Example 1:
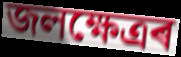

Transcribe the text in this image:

জলক্ষেত্ৰৰ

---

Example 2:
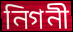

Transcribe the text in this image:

নিগনী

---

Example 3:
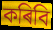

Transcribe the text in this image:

কৰিবি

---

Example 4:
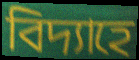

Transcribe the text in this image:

বিদ্যাহে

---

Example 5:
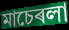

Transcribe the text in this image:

মাচেৰলা